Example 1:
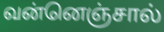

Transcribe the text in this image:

வன்னெஞ்சால்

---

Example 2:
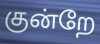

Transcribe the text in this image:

குன்றே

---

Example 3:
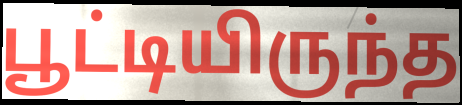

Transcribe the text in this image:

பூட்டியிருந்த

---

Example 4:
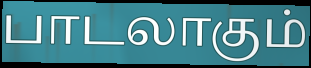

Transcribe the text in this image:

பாடலாகும்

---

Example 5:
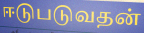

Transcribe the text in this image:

ஈடுபடுவதன்